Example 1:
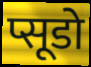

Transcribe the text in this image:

प्सूडो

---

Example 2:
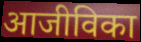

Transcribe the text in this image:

आजीविका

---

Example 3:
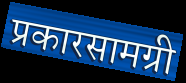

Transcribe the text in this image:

प्रकारसामग्री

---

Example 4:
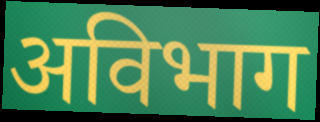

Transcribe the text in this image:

अविभाग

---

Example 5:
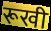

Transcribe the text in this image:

रूखी